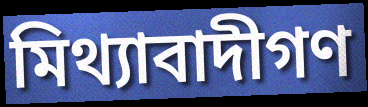
মিথ্যাবাদীগণ